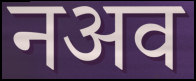
नअव